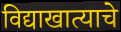
विद्याखात्याचे